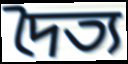
দৈত্য